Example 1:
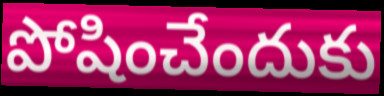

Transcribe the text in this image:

పోషించేందుకు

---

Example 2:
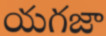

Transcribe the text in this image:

యగజా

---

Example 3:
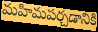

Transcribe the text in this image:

మహిమపర్చడానికి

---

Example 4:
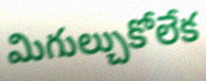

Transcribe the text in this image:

మిగుల్చుకోలేక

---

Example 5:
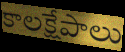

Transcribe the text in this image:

కాలక్షేపాలు